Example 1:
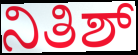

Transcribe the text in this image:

ನಿತಿಶ್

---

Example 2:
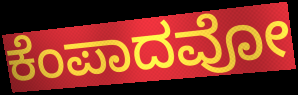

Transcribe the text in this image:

ಕೆಂಪಾದವೋ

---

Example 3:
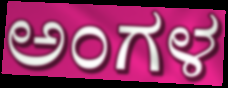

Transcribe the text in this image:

ಅಂಗಳ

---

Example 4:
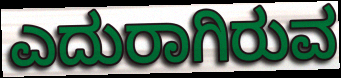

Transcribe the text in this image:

ಎದುರಾಗಿರುವ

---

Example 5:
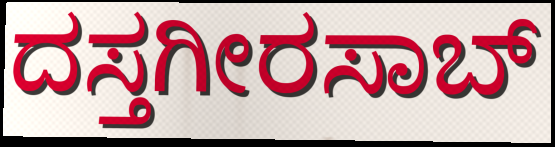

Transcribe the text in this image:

ದಸ್ತಗೀರಸಾಬ್